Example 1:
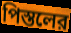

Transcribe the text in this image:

পিস্তলের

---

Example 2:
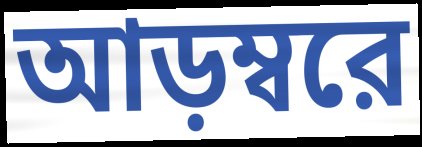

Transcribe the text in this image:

আড়ম্বরে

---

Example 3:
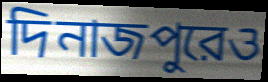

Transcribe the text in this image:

দিনাজপুরেও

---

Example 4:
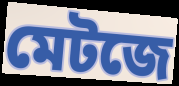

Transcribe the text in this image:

মেটজে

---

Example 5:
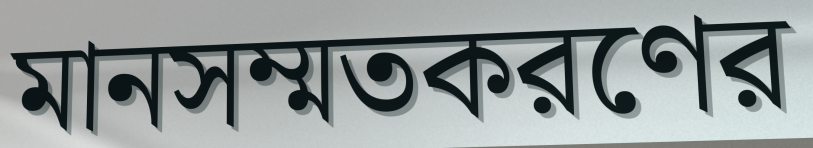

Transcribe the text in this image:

মানসম্মতকরণের